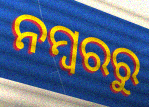
ନମ୍ବରରୁ